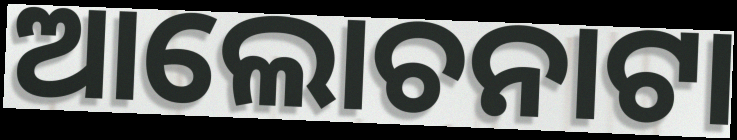
ଆଲୋଚନାଟା